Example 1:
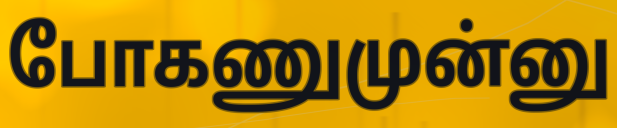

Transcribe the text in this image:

போகணுமுன்னு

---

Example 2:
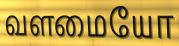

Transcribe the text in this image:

வளமையோ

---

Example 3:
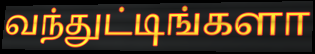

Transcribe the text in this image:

வந்துட்டிங்களா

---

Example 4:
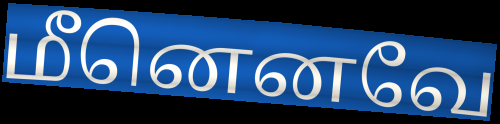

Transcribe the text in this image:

மீனெனவே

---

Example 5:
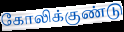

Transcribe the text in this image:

கோலிக்குண்டு